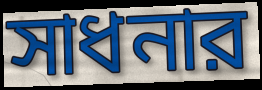
সাধনার